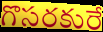
గొసరకురే